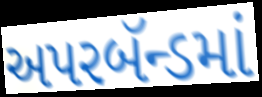
અપરબૅન્ડમાં